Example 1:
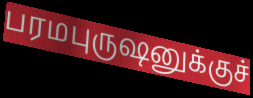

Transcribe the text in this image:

பரமபுருஷனுக்குச்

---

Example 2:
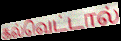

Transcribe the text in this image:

கல்வெட்டால்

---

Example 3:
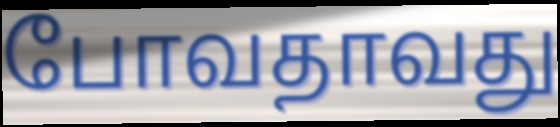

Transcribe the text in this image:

போவதாவது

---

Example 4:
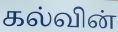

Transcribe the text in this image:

கல்வின்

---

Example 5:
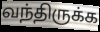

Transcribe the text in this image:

வந்திருக்க